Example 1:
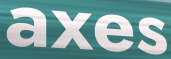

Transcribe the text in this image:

axes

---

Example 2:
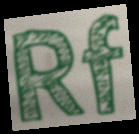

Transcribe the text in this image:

Rf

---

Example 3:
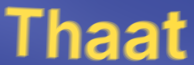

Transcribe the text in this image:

Thaat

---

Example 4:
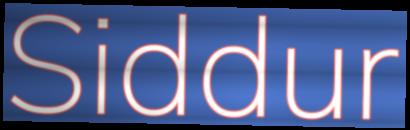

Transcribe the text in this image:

Siddur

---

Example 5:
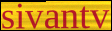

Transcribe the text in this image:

sivantv